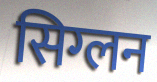
सिग्‍लन